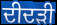
ਦੀਦੜੀ